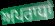
ਅਪਰਾਧਾਂ